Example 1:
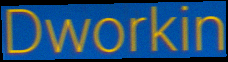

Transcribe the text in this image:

Dworkin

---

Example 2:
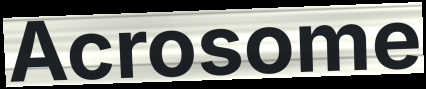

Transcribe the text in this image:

Acrosome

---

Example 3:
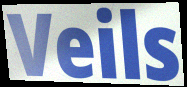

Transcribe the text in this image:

Veils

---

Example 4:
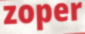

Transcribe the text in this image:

zoper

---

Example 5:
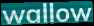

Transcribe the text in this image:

wallow